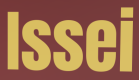
Issei